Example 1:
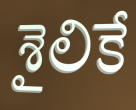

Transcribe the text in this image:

శైలికే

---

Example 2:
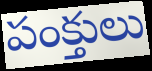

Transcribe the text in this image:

పంక్తులు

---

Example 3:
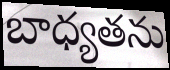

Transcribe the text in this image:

బాధ్యతను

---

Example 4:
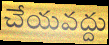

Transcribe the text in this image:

చేయవద్దు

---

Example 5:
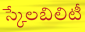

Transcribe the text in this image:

స్కేలబిలిటీ